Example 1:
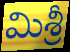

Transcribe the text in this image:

మిశ్రీ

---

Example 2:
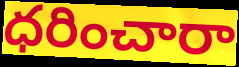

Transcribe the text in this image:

ధరించారా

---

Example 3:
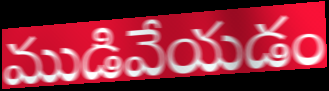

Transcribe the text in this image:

ముడివేయడం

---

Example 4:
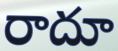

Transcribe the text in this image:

రాదూ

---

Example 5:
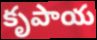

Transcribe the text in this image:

కృపాయ